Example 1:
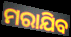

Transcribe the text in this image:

ମରାଯିବ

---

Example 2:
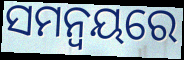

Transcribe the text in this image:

ସମନ୍ବୟରେ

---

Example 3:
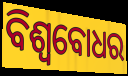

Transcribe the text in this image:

ବିଶ୍ବବୋଧର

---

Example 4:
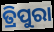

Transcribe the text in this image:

ତ୍ରିପୁରା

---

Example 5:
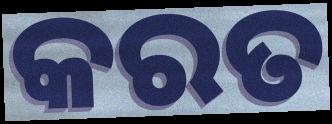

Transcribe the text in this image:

କରତ